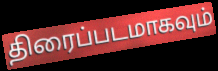
திரைப்படமாகவும்